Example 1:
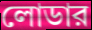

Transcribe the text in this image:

লোডার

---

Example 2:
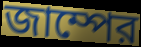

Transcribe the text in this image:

জাম্পের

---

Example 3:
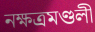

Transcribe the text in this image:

নক্ষত্রমণ্ডলী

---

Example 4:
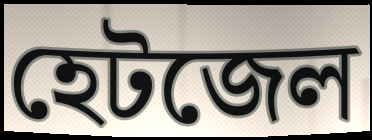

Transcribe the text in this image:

হেটজেল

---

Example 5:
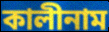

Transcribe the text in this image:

কালীনাম